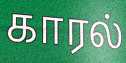
காரல்